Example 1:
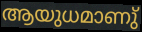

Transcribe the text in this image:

ആയുധമാണു്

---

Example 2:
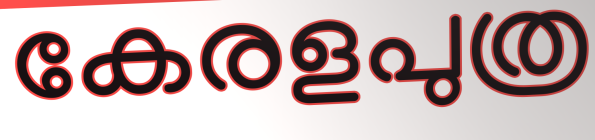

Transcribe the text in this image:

കേരളപുത്ര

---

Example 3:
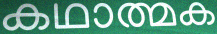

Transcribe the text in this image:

കഥാത്മക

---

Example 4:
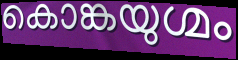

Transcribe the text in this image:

കൊങ്കയുഗ്മം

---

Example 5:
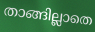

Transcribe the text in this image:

താങ്ങില്ലാതെ